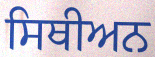
ਸਿਥੀਅਨ